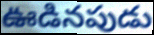
ఊడినపుడు